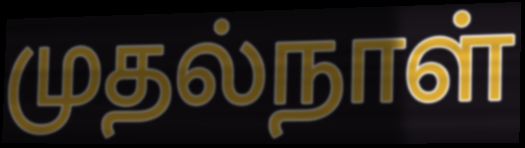
முதல்நாள்